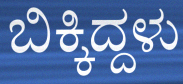
ಬಿಕ್ಕಿದ್ದಳು